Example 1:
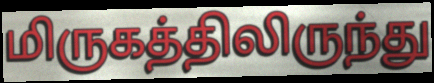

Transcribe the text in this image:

மிருகத்திலிருந்து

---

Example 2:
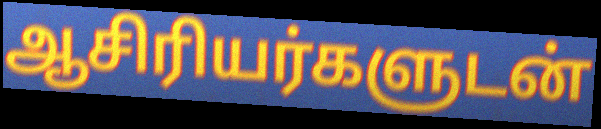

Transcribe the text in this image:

ஆசிரியர்களுடன்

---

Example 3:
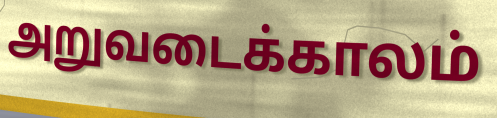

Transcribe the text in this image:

அறுவடைக்காலம்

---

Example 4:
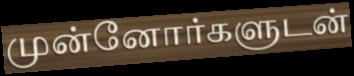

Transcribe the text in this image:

முன்னோர்களுடன்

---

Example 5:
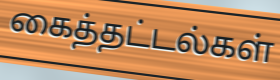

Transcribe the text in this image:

கைத்தட்டல்கள்